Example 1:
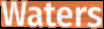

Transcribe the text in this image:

Waters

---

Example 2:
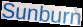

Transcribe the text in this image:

Sunburn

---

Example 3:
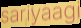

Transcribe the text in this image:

sariyaagi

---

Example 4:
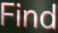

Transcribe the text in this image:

Find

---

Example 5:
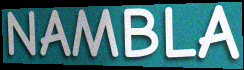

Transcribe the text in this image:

NAMBLA